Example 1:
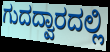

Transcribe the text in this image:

ಗುದದ್ವಾರದಲ್ಲಿ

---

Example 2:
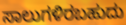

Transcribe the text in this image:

ಸಾಲುಗಳಿರಬಹುದು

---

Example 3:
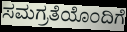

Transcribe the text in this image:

ಸಮಗ್ರತೆಯೊಂದಿಗೆ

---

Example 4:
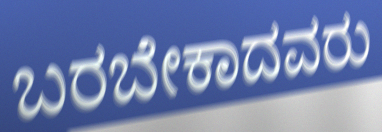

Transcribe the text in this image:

ಬರಬೇಕಾದವರು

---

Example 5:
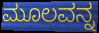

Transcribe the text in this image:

ಮೂಲವನ್ನ